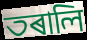
তৰালি